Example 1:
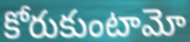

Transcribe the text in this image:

కోరుకుంటామో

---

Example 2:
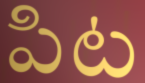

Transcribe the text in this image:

పిట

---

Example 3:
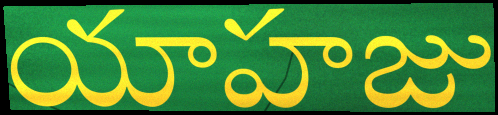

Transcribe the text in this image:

యాహజు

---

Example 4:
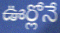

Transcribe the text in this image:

ఊర్లోనే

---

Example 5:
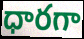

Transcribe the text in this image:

ధారగా